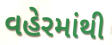
વહેરમાંથી